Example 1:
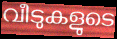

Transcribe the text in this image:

വീടുകളുടെ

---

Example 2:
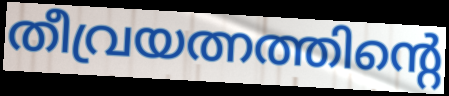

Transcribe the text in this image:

തീവ്രയത്നത്തിന്റെ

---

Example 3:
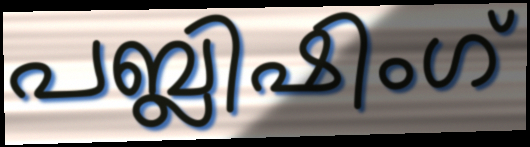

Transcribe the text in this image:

പബ്ലിഷിംഗ്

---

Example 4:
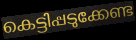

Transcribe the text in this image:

കെട്ടിപ്പടുക്കേണ്ട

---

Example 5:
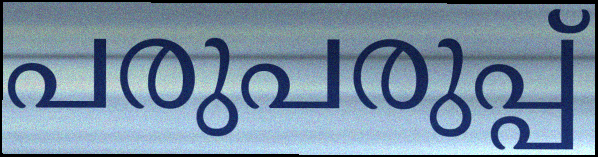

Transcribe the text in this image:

പരുപരുപ്പ്